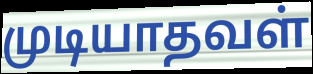
முடியாதவள்